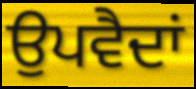
ਉਪਵੈਦਾਂ